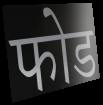
फोड